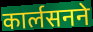
कार्लसनने